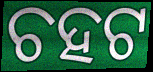
ଚହଟ